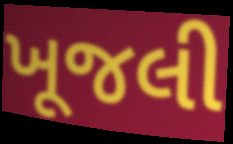
ખૂજલી